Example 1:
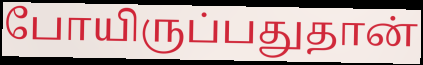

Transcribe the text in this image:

போயிருப்பதுதான்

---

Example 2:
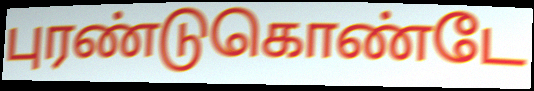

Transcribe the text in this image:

புரண்டுகொண்டே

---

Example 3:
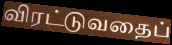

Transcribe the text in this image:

விரட்டுவதைப்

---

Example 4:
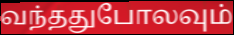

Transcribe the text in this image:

வந்ததுபோலவும்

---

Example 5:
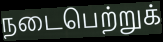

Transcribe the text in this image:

நடைபெற்றுக்